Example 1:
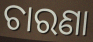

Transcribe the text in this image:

ଚାରଣା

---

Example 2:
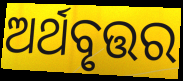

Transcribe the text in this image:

ଅର୍ଥବୃତ୍ତର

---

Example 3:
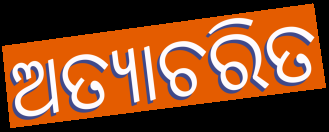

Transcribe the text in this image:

ଅତ୍ୟାଚରିତ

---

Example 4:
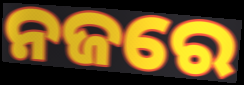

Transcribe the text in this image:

ନଜରେ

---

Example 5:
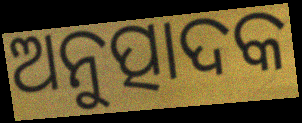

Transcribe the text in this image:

ଅନୁତ୍ପାଦକ